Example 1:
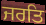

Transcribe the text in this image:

ਜਰਤਿ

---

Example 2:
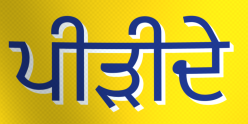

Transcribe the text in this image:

ਪੀੜੀਦੇ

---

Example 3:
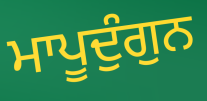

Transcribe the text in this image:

ਮਾਪੂਦੁੰਗੁਨ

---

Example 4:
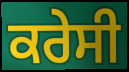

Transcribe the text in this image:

ਕਰੇਸੀ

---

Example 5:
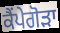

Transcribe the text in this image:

ਕੈਂਪੇਗੋੜਾ